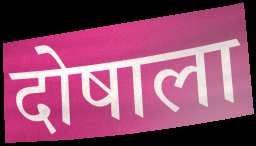
दोषाला